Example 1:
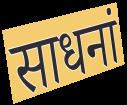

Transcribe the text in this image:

साधनां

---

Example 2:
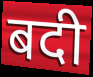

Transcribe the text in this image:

बदी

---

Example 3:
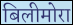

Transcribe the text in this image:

बिलीमोरा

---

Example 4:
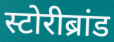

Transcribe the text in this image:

स्टोरीब्रांड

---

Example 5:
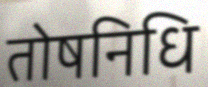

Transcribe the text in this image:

तोषनिधि